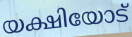
യക്ഷിയോട്